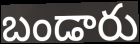
బండారు